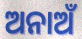
ଅନାଅଁ